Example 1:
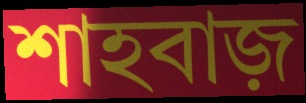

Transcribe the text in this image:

শাহবাজ়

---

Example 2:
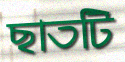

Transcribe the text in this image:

ছাতটি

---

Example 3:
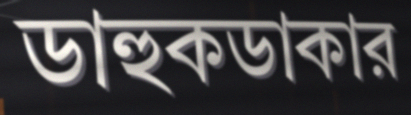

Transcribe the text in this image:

ডাহুকডাকার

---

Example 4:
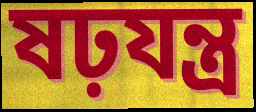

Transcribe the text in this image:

ষঢ়যন্ত্র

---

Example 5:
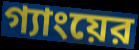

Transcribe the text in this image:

গ্যাংয়ের